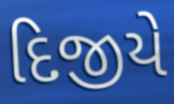
દિજીયે